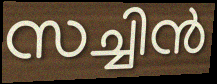
സച്ചിൻ